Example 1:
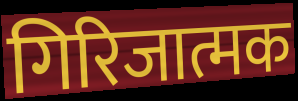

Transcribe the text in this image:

गिरिजात्मक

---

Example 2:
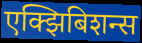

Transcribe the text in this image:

एक्झिबिशन्स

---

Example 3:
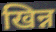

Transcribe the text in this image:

खिन्न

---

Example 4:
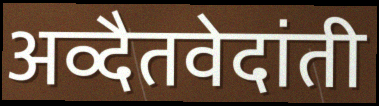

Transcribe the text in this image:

अव्दैतवेदांती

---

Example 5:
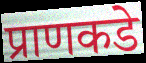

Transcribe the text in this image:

प्राणकडे